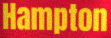
Hampton